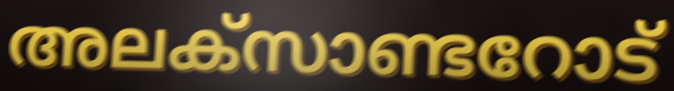
അലക്സാണ്ടറോട്